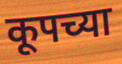
कूपच्या